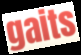
gaits